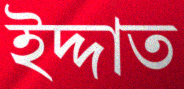
ইদ্দাত